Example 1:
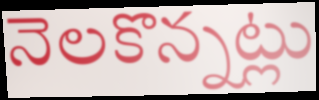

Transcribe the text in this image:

నెలకొన్నట్లు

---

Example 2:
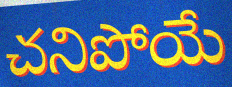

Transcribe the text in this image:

చనిపోయే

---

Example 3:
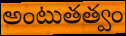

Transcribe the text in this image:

అంటుతత్వం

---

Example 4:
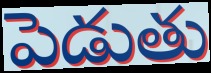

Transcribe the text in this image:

పెడుతు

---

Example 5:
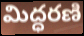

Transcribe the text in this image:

మిద్ధరణి